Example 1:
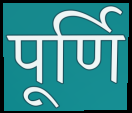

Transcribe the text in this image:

पूर्णि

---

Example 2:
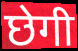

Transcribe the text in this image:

छेगी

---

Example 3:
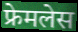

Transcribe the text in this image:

फ्रेमलेस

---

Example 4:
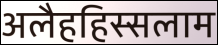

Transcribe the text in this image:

अलैहहिस्सलाम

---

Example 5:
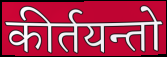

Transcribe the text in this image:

कीर्तयन्तो